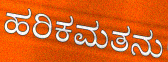
ಹರಿಕಮತನು